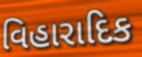
વિહારાદિક